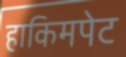
हाकिमपेट